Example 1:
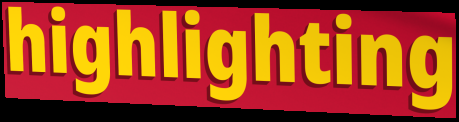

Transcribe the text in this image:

highlighting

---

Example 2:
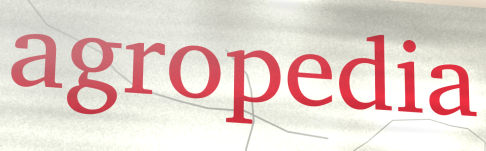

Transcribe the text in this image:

agropedia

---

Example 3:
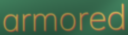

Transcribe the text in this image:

armored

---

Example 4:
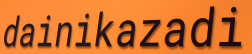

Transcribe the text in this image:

dainikazadi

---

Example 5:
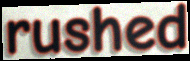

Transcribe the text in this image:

rushed